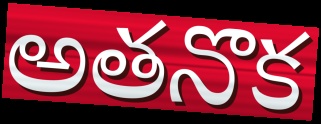
అతనొక